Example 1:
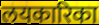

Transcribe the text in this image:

लयकारिका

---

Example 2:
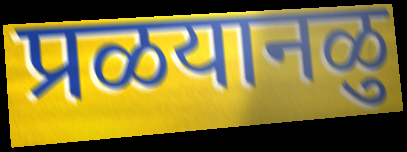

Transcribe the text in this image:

प्रळयानळु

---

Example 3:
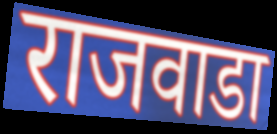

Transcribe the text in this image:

राजवाडा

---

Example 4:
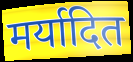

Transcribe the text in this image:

मर्यादित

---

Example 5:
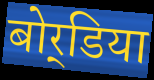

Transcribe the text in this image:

बोर्डिया